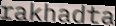
rakhadta